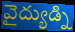
వైద్యుడ్ని